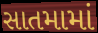
સાતમામાં